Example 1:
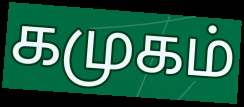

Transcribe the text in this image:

கமுகம்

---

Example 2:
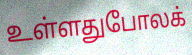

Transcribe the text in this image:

உள்ளதுபோலக்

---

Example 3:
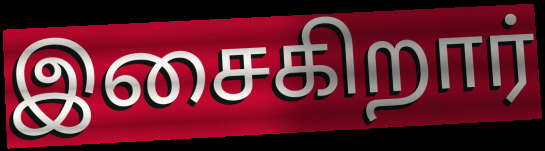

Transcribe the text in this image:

இசைகிறார்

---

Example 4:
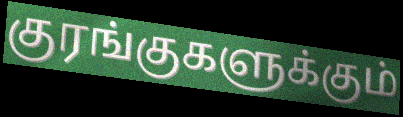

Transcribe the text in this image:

குரங்குகளுக்கும்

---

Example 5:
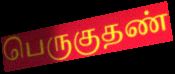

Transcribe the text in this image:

பெருகுதண்